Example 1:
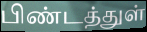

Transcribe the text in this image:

பிண்டத்துள்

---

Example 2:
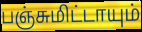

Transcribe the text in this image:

பஞ்சுமிட்டாயும்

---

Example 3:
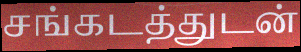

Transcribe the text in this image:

சங்கடத்துடன்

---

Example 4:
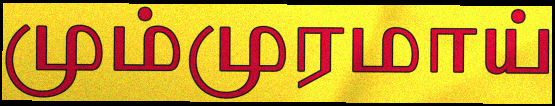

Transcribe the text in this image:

மும்முரமாய்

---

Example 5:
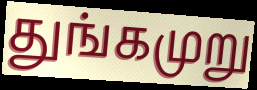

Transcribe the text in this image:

துங்கமுறு